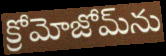
క్రోమోజోమ్‌ను